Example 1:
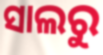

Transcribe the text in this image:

ସାଲରୁ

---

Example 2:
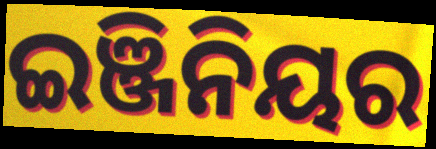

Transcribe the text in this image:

ଇଞ୍ଜିନିୟର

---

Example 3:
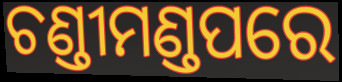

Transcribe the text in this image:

ଚଣ୍ଡୀମଣ୍ଡପରେ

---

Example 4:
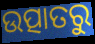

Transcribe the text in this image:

ଉତ୍ପାତରୁ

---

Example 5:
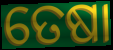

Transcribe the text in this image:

ତେଷା